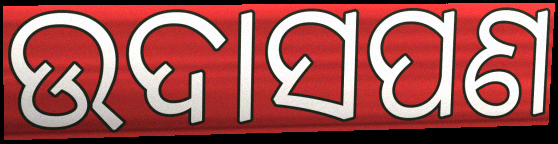
ଉଦାସପଣ